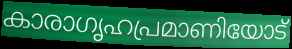
കാരാഗൃഹപ്രമാണിയോട്